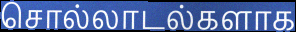
சொல்லாடல்களாக